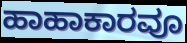
ಹಾಹಾಕಾರವೂ